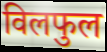
विलफुल